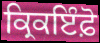
ਕ੍ਰਿਕਇੰਫ਼ੋ